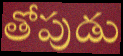
తోపుడు